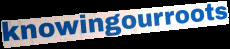
knowingourroots